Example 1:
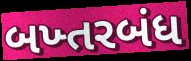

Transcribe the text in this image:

બખ્તરબંધ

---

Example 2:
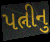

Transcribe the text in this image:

પત્નીનુ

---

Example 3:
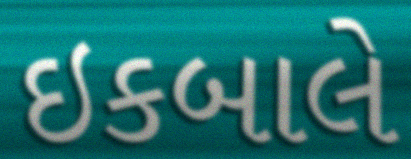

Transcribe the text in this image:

ઇકબાલે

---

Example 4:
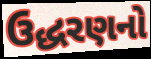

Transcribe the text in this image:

ઉદ્ધરણનો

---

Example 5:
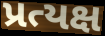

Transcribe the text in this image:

પ્રત્યક્ષ